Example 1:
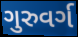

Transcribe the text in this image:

ગુરુવર્ગ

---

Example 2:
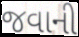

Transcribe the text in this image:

જવાની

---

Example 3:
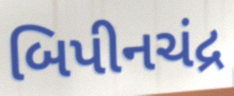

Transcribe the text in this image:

બિપીનચંદ્ર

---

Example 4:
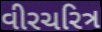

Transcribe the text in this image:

વીરચરિત્ર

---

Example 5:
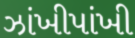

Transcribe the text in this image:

ઝાંખીપાંખી